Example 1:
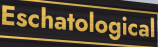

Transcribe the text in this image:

Eschatological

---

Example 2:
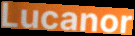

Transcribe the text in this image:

Lucanor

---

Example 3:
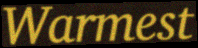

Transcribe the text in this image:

Warmest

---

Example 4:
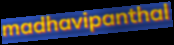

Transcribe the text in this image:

madhavipanthal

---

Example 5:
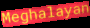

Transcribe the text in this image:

Meghalayan